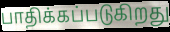
பாதிக்கப்படுகிறது